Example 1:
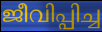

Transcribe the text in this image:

ജീവിപ്പിച്ച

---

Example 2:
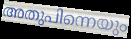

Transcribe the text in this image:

അതുപിന്നെയും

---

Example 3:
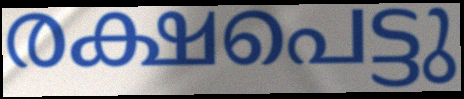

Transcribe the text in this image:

രക്ഷപെട്ടു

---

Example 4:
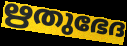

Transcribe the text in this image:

ഋതുഭേദ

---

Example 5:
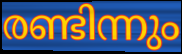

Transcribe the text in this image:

രണ്ടിന്നും